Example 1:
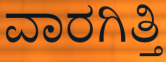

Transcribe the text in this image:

ವಾರಗಿತ್ತಿ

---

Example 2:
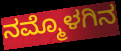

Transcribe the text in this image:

ನಮ್ಮೊಳಗಿನ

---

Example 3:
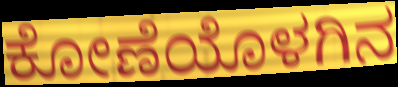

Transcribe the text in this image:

ಕೋಣೆಯೊಳಗಿನ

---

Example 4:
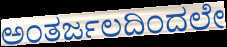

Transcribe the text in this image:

ಅಂತರ್ಜಲದಿಂದಲೇ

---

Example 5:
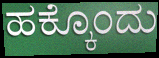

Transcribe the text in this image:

ಹಕ್ಕೊಂದು